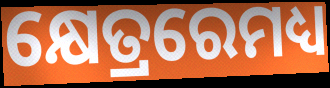
କ୍ଷେତ୍ରରେମଧ୍ୟ